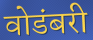
वोडंबरी